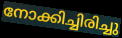
നോക്കിച്ചിരിച്ചു